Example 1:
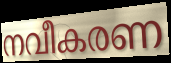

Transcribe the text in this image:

നവീകരണ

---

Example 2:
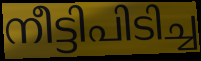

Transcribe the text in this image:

നീട്ടിപിടിച്ച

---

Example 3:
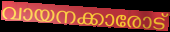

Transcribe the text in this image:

വായനക്കാരോട്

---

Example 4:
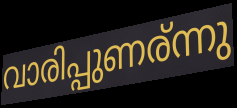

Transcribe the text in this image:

വാരിപ്പുണര്ന്നു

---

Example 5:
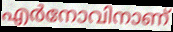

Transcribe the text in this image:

എർനോവിനാണ്